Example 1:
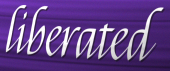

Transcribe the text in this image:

liberated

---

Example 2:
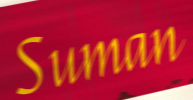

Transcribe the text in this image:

Suman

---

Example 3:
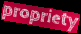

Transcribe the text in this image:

propriety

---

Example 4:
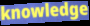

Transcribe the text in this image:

knowledge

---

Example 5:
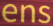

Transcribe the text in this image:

ens